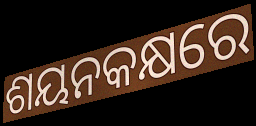
ଶୟନକକ୍ଷରେ